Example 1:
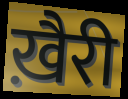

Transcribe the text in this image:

ख़ैरी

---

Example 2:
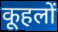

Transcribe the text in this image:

कूहलों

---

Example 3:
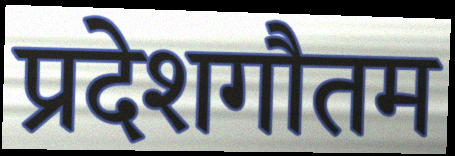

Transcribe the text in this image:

प्रदेशगौतम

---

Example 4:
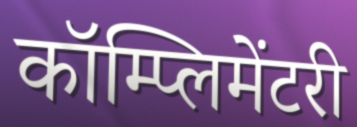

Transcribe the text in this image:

कॉम्प्लिमेंटरी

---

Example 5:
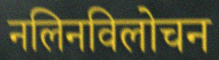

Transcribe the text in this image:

नलिनविलोचन